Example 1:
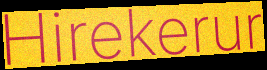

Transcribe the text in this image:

Hirekerur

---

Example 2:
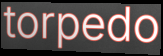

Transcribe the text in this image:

torpedo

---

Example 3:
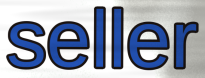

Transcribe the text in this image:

seller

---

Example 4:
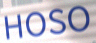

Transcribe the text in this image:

HOSO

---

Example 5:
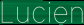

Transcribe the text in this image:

Lucien